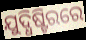
ଯୁଦ୍ଧିଷ୍ଟିରରେ